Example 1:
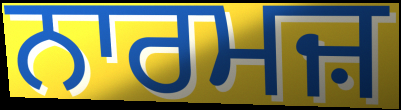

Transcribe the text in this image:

ਨਾਰਮਜ਼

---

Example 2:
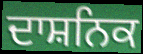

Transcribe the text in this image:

ਦਾਸ਼ਨਿਕ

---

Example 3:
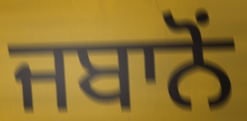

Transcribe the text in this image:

ਜਬਾਨੋਂ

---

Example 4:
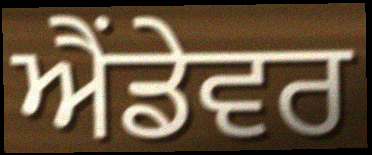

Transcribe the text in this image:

ਐਂਡੇਵਰ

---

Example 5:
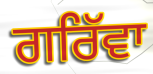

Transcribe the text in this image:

ਗਰਿੱਵਾ